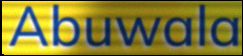
Abuwala